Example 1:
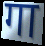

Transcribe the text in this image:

गा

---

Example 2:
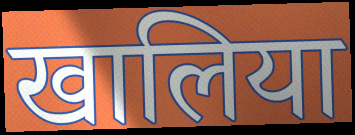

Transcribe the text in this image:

खालिया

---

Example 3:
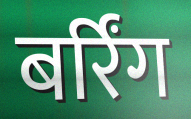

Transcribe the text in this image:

बर्रिंग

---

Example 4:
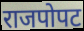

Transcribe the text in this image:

राजपोपट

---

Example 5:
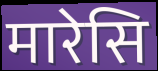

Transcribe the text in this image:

मारेसि